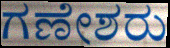
ಗಣೇಶರು